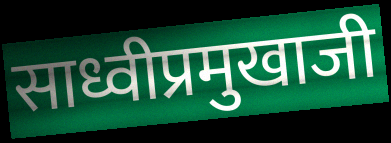
साध्वीप्रमुखाजी